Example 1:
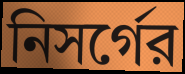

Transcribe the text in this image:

নিসর্গের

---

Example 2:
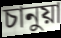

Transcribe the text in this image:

চানুয়া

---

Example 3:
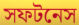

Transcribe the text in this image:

সফটনেস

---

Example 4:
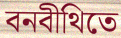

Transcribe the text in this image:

বনবীথিতে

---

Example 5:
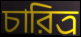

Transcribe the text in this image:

চারিত্র